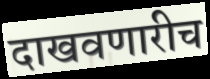
दाखवणारीच